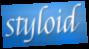
styloid